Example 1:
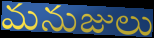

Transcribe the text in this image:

మనుజులు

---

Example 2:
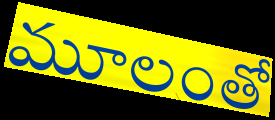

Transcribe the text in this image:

మూలంతో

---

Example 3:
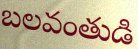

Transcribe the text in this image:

బలవంతుడి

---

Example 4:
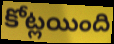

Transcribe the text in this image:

కోట్లయింది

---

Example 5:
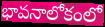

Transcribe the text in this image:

భావనాలోకంలో